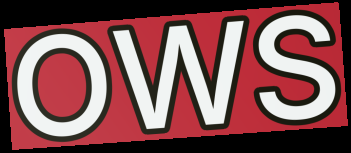
OWS